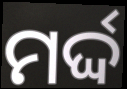
ମର୍ଦ୍ଦ